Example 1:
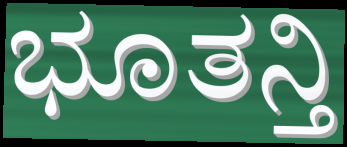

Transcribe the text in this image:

ಭೂತನ್ತಿ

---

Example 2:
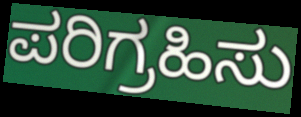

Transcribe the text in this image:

ಪರಿಗ್ರಹಿಸು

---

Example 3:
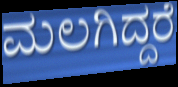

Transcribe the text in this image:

ಮಲಗಿದ್ದರೆ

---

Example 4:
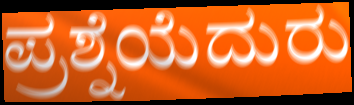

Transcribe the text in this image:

ಪ್ರಶ್ನೆಯೆದುರು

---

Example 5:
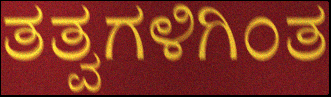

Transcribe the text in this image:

ತತ್ವಗಳಿಗಿಂತ